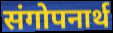
संगोपनार्थ